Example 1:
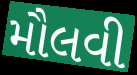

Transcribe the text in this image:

મૌલવી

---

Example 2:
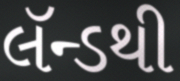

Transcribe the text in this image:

લૅન્ડથી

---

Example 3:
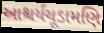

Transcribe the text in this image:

આશ્ચર્યચૂડામણિ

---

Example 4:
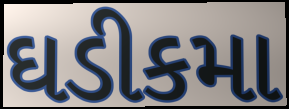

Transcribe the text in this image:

ઘડીકમા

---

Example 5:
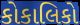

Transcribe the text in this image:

કોકાલિકો